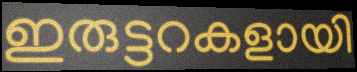
ഇരുട്ടറകളായി